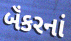
બૅંકરનાં